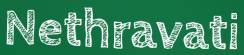
Nethravati